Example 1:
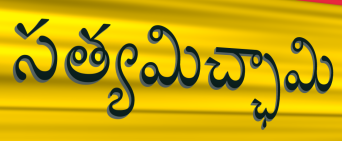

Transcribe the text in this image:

సత్యమిచ్ఛామి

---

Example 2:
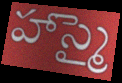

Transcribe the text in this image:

హాస్మై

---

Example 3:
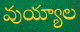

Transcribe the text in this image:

వుయ్యాల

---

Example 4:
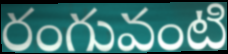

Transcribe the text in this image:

రంగువంటి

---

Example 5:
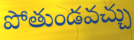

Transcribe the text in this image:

పోతుండవచ్చు